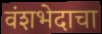
वंशभेदाचा